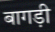
बागड़ी